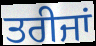
ਤਰੀਜਾਂ